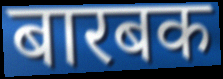
बारबक